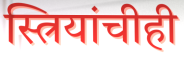
स्त्रियांचीही